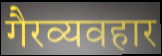
गैरव्यवहार